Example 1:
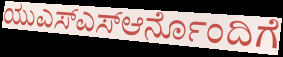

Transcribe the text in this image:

ಯುಎಸ್ಎಸ್ಆರ್ನೊಂದಿಗೆ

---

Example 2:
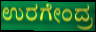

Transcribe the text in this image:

ಉರಗೇಂದ್ರ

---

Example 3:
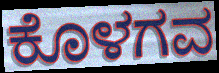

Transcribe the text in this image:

ಕೊಳಗವ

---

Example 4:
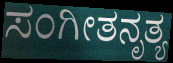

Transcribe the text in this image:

ಸಂಗೀತನೃತ್ಯ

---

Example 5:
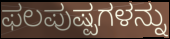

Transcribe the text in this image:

ಫಲಪುಷ್ಪಗಳನ್ನು